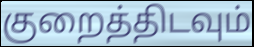
குறைத்திடவும்